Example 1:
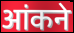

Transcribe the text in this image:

आंकने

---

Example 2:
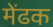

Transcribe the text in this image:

मेंढक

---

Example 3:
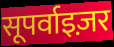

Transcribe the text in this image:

सूपर्वाइज़र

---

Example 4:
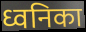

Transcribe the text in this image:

ध्वनिका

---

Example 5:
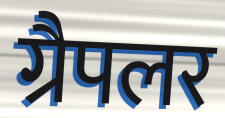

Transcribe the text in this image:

ग्रैपलर